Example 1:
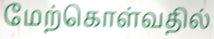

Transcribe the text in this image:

மேற்கொள்வதில்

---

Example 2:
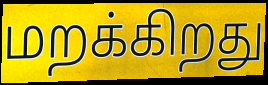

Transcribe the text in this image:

மறக்கிறது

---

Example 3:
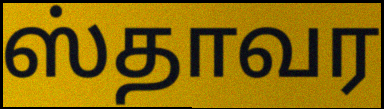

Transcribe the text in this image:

ஸ்தாவர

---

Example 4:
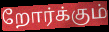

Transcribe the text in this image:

றோர்க்கும்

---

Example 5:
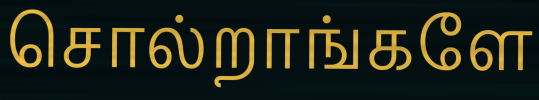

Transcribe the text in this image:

சொல்றாங்களே